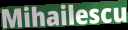
Mihailescu